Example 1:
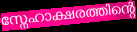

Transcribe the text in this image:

സ്നേഹാക്ഷരത്തിന്റെ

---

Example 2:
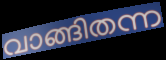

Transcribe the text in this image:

വാങ്ങിതന്ന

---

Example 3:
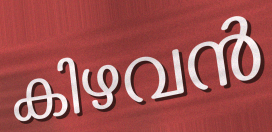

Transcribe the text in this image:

കിഴവൻ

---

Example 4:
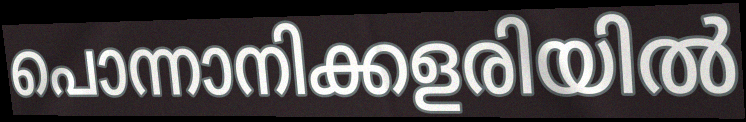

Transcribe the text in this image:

പൊന്നാനിക്കളരിയിൽ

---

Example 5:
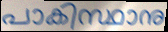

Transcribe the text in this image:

പാകിസ്ഥാനു